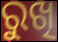
ରୁଖି